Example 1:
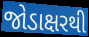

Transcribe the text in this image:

જોડાક્ષરથી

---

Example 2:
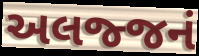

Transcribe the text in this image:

અલજ્જનં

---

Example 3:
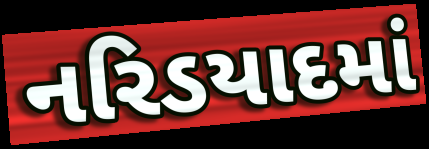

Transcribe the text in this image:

નરિડયાદમાં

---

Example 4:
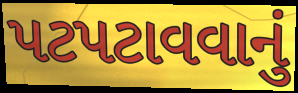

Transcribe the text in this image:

પટપટાવવાનું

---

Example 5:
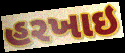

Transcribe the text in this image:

હરખાઇ